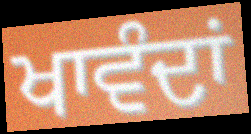
ਖਾਵੰਦਾਂ